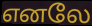
எனலே